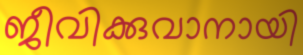
ജീവിക്കുവാനായി